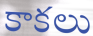
కాకలు